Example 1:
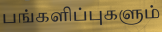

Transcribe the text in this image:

பங்களிப்புகளும்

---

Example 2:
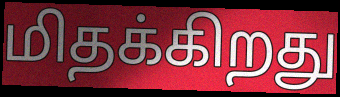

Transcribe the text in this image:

மிதக்கிறது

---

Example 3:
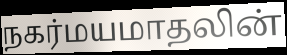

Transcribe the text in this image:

நகர்மயமாதலின்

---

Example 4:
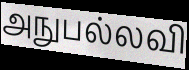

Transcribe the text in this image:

அநுபல்லவி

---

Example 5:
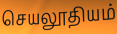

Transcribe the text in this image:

செயலூதியம்